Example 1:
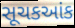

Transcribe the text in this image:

સૂચકઆંક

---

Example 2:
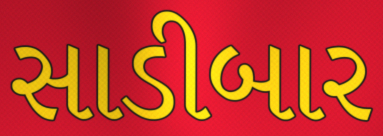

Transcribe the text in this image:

સાડીબાર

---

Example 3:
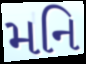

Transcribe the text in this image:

મનિ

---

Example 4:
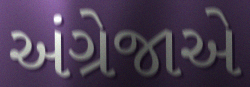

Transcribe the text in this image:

અંગ્રેજાએ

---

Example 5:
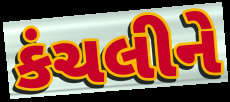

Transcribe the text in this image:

કંચલીને